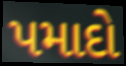
પમાદો